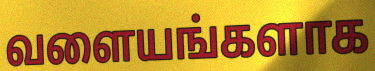
வளையங்களாக